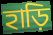
হাড়ি